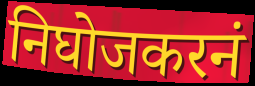
निघोजकरनं